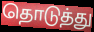
தொடுத்து